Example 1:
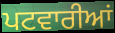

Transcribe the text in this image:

ਪਟਵਾਰੀਆਂ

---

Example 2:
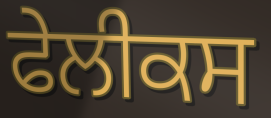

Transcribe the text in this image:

ਫੇਲੀਕਸ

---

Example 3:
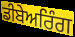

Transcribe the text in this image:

ਡੀਬੇਅਰਿੰਗ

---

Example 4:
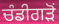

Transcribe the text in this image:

ਚੰਡੀਗੜੋਂ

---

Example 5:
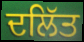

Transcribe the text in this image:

ਦਲਿੱਤ